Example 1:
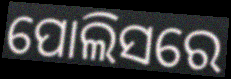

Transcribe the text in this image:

ପୋଲିସରେ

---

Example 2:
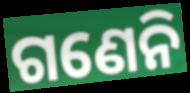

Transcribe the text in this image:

ଗଣେନି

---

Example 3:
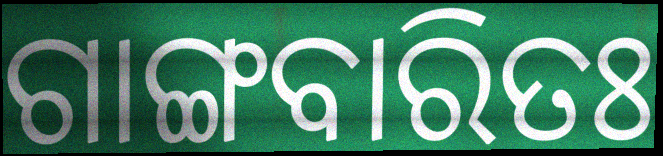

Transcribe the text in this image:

ଗାଙ୍ଗବାରିତଃ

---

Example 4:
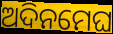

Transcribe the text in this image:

ଅଦିନମେଘ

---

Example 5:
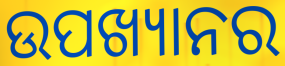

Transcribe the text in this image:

ଉପଖ୍ୟାନର